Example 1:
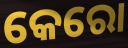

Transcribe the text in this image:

କେରୋ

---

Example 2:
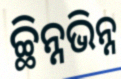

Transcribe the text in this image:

ଚ୍ଛିନ୍ନଭିନ୍ନ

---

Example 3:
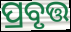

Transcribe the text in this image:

ପ୍ରବୃତ୍ତ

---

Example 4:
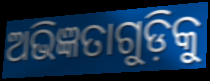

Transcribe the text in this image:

ଅଭିଜ୍ଞତାଗୁଡ଼ିକୁ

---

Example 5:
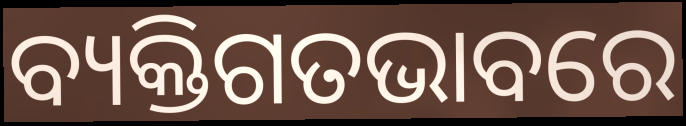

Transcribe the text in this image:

ବ୍ୟକ୍ତିଗତଭାବରେ